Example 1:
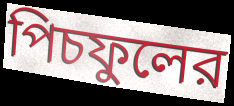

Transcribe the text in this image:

পিচফুলের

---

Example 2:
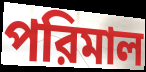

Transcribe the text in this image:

পরিমাল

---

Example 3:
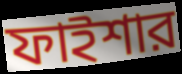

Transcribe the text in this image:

ফাইশার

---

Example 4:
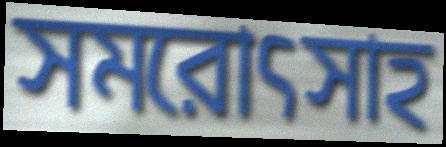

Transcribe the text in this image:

সমরোৎসাহ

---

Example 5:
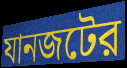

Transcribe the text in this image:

যানজটের